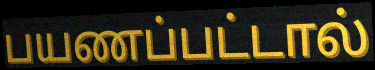
பயணப்பட்டால்